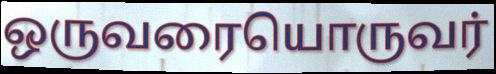
ஒருவரையொருவர்